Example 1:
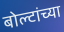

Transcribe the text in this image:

बोल्टांच्या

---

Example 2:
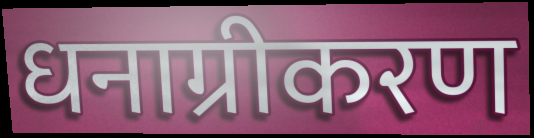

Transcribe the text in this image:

धनाग्रीकरण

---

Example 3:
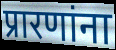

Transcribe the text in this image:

प्रारणांना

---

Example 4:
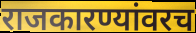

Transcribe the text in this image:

राजकारण्यांवरच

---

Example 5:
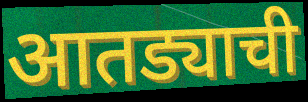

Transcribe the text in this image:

आतड्याची